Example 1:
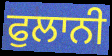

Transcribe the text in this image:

ਫੁਲਾਨੀ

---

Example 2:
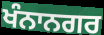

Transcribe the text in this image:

ਖੰਨਾਨਗਰ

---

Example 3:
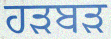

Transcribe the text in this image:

ਹੜਬੜ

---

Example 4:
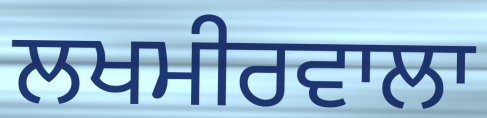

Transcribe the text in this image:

ਲਖਮੀਰਵਾਲਾ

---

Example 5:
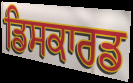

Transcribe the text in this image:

ਡਿਸਕਾਰਡ